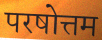
परषोत्तम